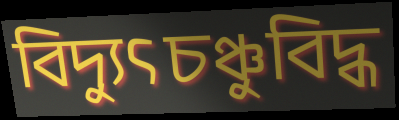
বিদ্যুৎচঞ্চুবিদ্ধ